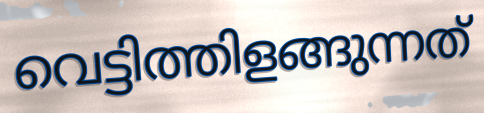
വെട്ടിത്തിളങ്ങുന്നത്